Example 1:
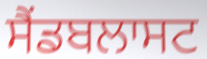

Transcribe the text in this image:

ਸੈਂਡਬਲਾਸਟ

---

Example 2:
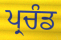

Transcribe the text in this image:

ਪ੍ਰਚੰਡ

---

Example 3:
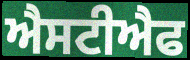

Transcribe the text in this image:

ਐਸਟੀਐਫ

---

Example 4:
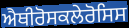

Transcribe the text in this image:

ਐਥੀਰੋਸਕਲੇਰੋਸਿਸ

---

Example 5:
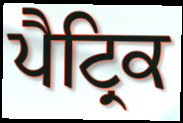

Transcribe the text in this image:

ਪੈਟ੍ਰਿਕ